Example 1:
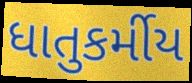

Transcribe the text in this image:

ધાતુકર્મીય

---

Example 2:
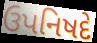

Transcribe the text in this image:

ઉપનિષદે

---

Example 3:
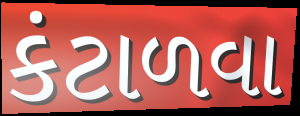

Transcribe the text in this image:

કંટાળવા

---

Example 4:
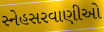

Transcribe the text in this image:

સ્નેહસરવાણીઓ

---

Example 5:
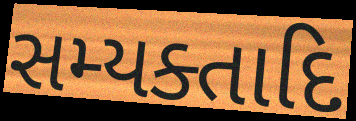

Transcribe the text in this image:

સમ્યક્તાદિ